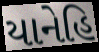
યાનેહિ